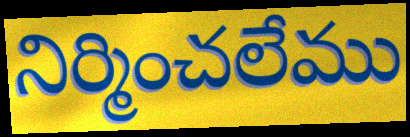
నిర్మించలేము